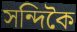
সন্দিকৈ